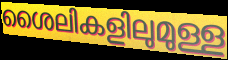
ശൈലികളിലുമുള്ള